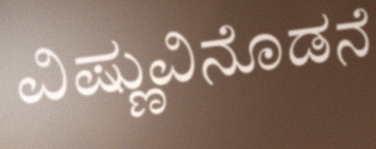
ವಿಷ್ಣುವಿನೊಡನೆ